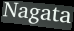
Nagata